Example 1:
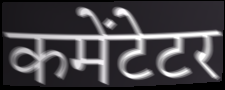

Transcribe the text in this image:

कमेंटेटर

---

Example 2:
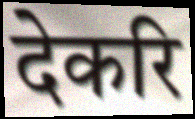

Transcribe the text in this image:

देकरि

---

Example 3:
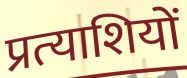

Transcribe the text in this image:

प्रत्‍याशियों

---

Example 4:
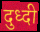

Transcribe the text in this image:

दुध्दी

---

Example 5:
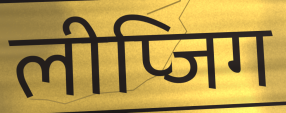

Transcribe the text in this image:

लीप्जिग